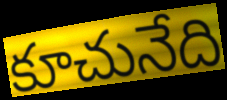
కూచునేది